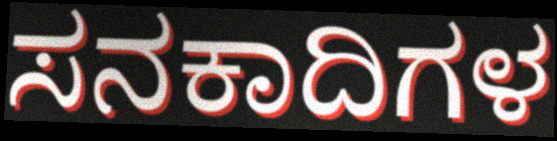
ಸನಕಾದಿಗಳ